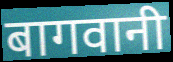
बागवानी